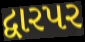
દ્વારપર